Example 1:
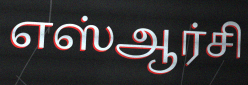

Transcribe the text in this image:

எஸ்ஆர்சி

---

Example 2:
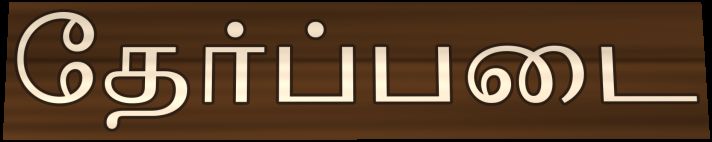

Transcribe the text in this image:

தேர்ப்படை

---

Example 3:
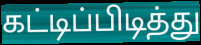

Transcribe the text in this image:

கட்டிப்பிடித்து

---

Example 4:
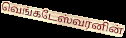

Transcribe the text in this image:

வெங்கடேஸ்வரனின்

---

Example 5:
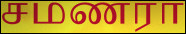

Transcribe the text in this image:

சமணரா